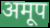
अमूप